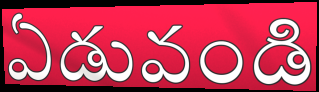
ఏడువండి